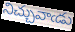
నిచ్చువాఁడు